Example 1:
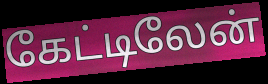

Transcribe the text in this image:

கேட்டிலேன்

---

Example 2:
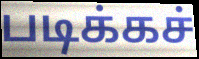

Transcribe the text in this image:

படிக்கச்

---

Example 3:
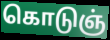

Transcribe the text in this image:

கொடுஞ்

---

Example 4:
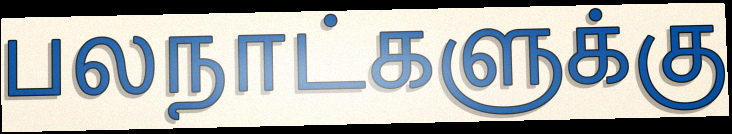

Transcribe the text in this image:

பலநாட்களுக்கு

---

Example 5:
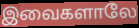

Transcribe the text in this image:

இவைகளாலே